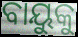
ବାୟୁକୁ